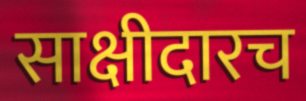
साक्षीदारच